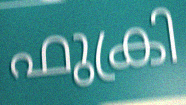
ഫുക്രി